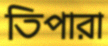
তিপারা